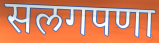
सलगपणा